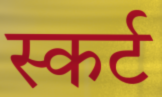
स्कर्ट